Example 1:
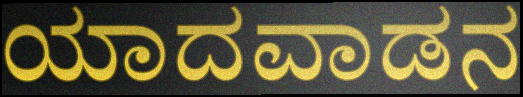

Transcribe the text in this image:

ಯಾದವಾಡನ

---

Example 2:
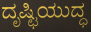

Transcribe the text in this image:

ದೃಷ್ಟಿಯುದ್ಧ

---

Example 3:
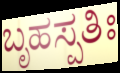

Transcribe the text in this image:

ಬೃಹಸ್ಪತಿಃ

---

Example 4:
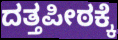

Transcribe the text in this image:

ದತ್ತಪೀಠಕ್ಕೆ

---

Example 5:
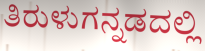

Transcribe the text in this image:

ತಿರುಳುಗನ್ನಡದಲ್ಲಿ